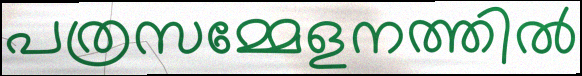
പത്രസമ്മേളനത്തിൽ